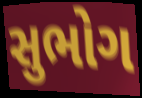
સુભોગ